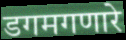
डगमगणारे